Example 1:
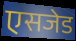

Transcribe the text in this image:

एसजेड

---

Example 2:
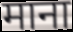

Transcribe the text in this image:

माना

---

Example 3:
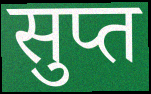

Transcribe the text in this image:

सुप्त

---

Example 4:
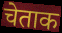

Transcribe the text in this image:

चेताक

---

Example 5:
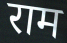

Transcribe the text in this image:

राम